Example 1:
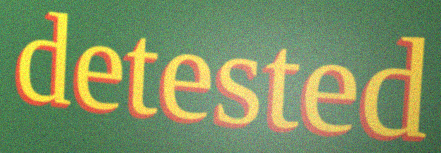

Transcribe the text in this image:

detested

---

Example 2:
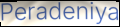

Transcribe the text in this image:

Peradeniya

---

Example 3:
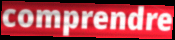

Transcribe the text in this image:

comprendre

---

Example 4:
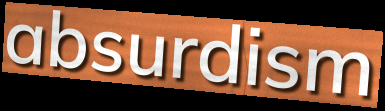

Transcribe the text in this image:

absurdism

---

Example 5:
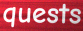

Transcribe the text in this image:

quests